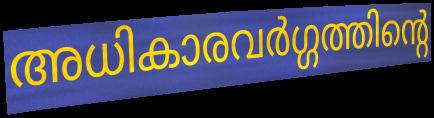
അധികാരവർഗ്ഗത്തിന്റെ